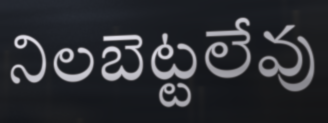
నిలబెట్టలేవు